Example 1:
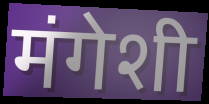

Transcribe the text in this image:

मंगेशी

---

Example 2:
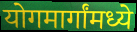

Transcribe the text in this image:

योगमार्गांमध्ये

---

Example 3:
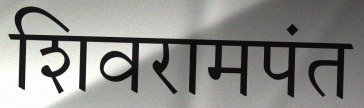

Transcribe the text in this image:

शिवरामपंत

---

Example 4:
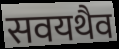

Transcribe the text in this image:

सवयथैव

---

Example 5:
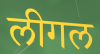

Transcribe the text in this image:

लीगल